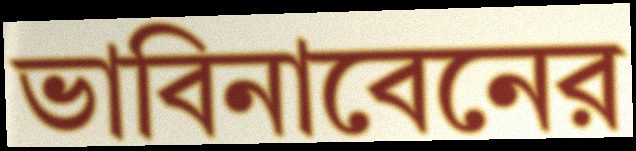
ভাবিনাবেনের